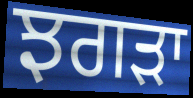
ਝਗੜਾ